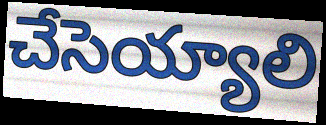
చేసెయ్యాలి